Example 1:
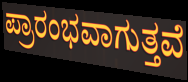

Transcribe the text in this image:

ಪ್ರಾರಂಭವಾಗುತ್ತವೆ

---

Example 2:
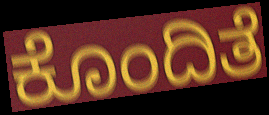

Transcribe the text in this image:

ಕೊಂದಿತೆ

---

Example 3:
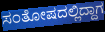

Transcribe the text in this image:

ಸಂತೋಷದಲ್ಲಿದ್ದಾಗ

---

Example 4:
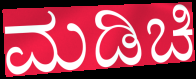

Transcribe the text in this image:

ಮಡಿಚಿ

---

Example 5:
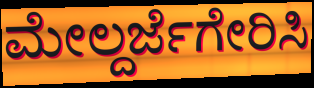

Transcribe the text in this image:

ಮೇಲ್ದರ್ಜೆಗೇರಿಸಿ